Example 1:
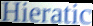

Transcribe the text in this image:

Hieratic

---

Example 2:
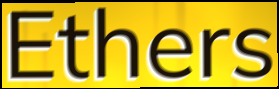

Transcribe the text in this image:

Ethers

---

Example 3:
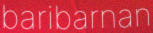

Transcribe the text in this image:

baribarnan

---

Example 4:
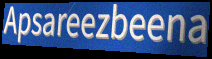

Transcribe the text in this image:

Apsareezbeena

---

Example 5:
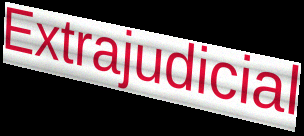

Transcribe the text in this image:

Extrajudicial